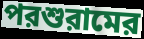
পরশুরামের